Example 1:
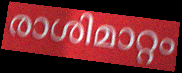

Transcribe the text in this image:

രാശിമാറ്റം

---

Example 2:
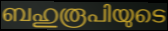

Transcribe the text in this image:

ബഹുരൂപിയുടെ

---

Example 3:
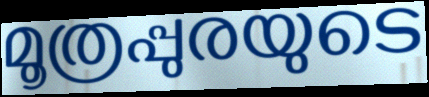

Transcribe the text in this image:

മൂത്രപ്പുരയുടെ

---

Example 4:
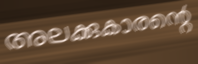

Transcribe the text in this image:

അലക്കുകാരന്റെ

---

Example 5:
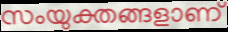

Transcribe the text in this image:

സംയുക്തങ്ങളാണ്